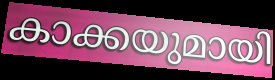
കാക്കയുമായി